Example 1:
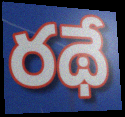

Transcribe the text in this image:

రథే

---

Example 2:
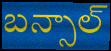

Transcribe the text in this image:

బన్సాల్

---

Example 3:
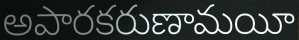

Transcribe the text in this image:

అపారకరుణామయీ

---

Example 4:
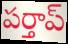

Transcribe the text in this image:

పర్తాప్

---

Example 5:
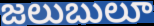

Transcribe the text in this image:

జలుబులూ